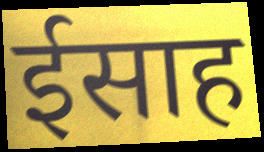
ईसाह